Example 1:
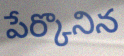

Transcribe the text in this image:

పేర్కొనిన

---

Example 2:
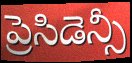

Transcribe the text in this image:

ప్రెసిడెన్సీ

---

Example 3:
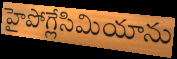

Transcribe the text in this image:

హైపోగ్లేసిమియాను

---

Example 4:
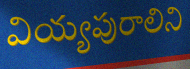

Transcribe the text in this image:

వియ్యపురాలిని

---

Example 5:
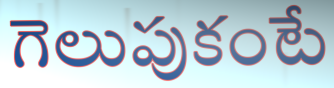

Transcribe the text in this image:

గెలుపుకంటే